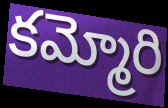
కమ్మోరి